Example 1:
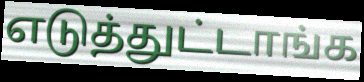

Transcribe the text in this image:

எடுத்துட்டாங்க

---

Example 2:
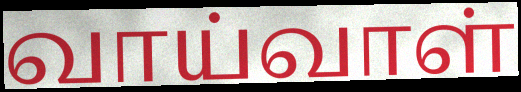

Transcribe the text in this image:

வாய்வாள்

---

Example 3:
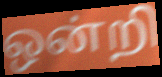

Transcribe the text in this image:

ஒன்றி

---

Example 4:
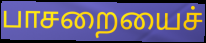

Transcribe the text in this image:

பாசறையைச்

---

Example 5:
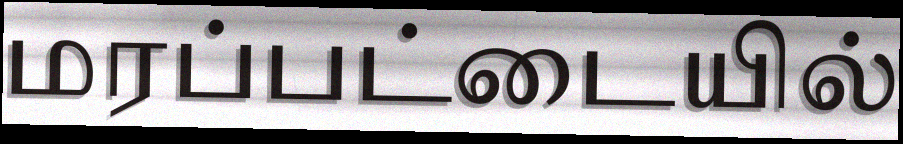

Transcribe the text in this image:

மரப்பட்டையில்